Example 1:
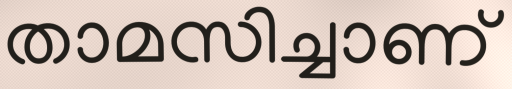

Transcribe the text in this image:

താമസിച്ചാണ്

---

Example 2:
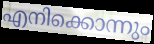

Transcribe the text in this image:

എനിക്കൊന്നും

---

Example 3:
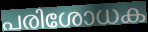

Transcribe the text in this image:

പരിശോധക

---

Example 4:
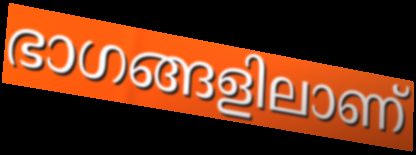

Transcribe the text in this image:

ഭാഗങ്ങളിലാണ്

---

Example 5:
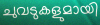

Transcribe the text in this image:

ചുവടുകളുമായി